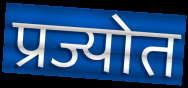
प्रज्योत